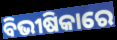
ବିଭୀଷିକାରେ